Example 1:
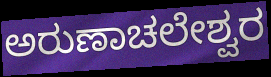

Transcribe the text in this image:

ಅರುಣಾಚಲೇಶ್ವರ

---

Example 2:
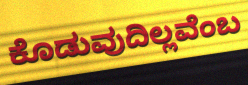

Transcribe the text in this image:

ಕೊಡುವುದಿಲ್ಲವೆಂಬ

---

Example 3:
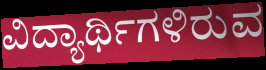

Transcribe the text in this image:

ವಿದ್ಯಾರ್ಥಿಗಳಿರುವ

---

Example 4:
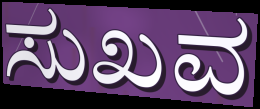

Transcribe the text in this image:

ಸುಖವ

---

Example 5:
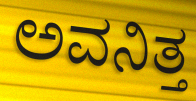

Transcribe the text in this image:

ಅವನಿತ್ತ